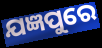
ଯଜ୍ଞପୁରେ